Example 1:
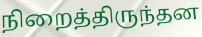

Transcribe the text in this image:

நிறைத்திருந்தன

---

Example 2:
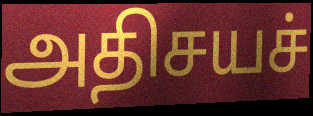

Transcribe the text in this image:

அதிசயச்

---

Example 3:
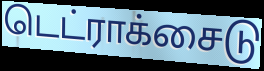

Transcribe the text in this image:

டெட்ராக்சைடு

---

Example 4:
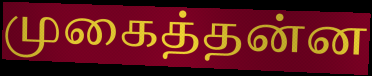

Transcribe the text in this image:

முகைத்தன்ன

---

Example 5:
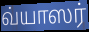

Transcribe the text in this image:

வ்யாஸர்